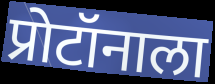
प्रोटॉनाला